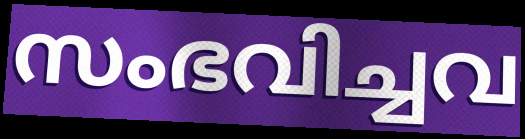
സംഭവിച്ചവ